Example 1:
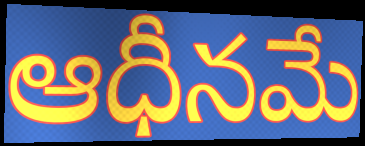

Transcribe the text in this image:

ఆధీనమే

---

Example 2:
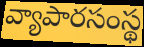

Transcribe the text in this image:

వ్యాపారసంస్థ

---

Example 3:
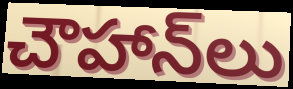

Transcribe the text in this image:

చౌహాన్‌లు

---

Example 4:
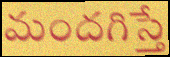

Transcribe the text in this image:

మందగిస్తే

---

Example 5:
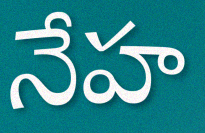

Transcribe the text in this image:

నేహ